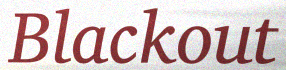
Blackout